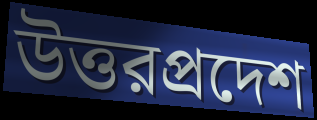
উত্তরপ্রদেশ